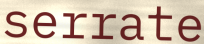
serrate